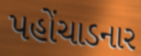
પહોંચાડનાર